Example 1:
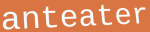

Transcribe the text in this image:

anteater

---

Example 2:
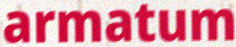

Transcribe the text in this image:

armatum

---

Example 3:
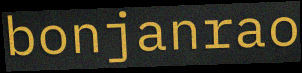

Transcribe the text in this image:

bonjanrao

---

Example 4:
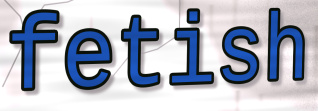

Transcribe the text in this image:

fetish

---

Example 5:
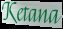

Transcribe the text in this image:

Ketana